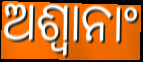
ଅଶ୍ଵାନାଂ